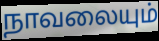
நாவலையும்